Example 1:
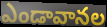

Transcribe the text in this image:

ఎండావానల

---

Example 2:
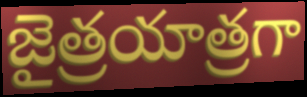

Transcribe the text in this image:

జైత్రయాత్రగా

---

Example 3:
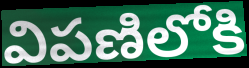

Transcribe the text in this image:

విపణిలోకి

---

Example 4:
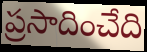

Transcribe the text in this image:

ప్రసాదించేది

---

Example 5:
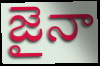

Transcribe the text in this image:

జైనా